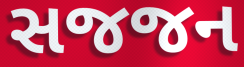
સજજન